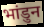
भांडुन